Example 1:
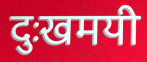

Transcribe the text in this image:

दुःखमयी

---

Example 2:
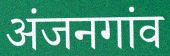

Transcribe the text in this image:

अंजनगांव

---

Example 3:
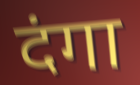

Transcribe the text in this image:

दंगा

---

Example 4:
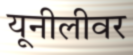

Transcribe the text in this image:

यूनीलीवर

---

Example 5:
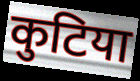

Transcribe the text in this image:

कुटिया